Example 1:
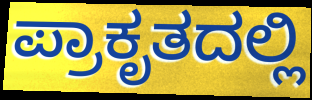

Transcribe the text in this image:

ಪ್ರಾಕೃತದಲ್ಲಿ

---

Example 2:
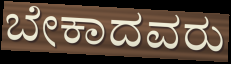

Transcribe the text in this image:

ಬೇಕಾದವರು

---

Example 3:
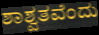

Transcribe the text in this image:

ಶಾಶ್ವತವೆಂದು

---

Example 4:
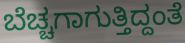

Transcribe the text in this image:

ಬೆಚ್ಚಗಾಗುತ್ತಿದ್ದಂತೆ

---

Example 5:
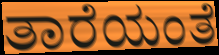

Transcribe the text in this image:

ತಾರೆಯಂತೆ